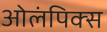
ओलंपिक्‍स